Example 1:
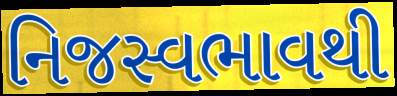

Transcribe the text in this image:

નિજસ્વભાવથી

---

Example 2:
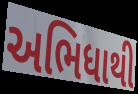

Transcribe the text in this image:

અભિધાથી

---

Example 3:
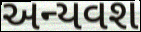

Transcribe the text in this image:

અન્યવશ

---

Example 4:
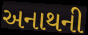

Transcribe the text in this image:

અનાથની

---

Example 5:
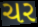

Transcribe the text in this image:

ચર